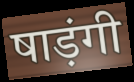
षाड़ंगी